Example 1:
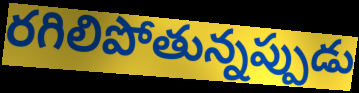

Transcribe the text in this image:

రగిలిపోతున్నప్పుడు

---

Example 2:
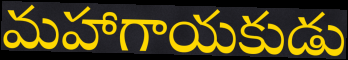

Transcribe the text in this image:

మహాగాయకుడు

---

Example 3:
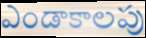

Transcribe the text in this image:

ఎండాకాలపు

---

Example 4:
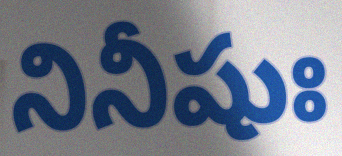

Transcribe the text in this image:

నినీషుః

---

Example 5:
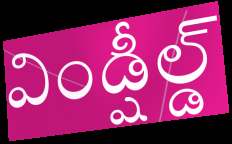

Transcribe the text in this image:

విండ్షీల్డ్